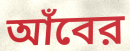
আঁবের